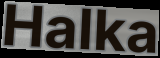
Halka